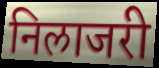
निलाजरी